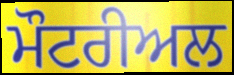
ਮੌਟਰੀਅਲ